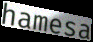
hamesa